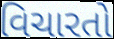
વિચારતો